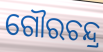
ଗୌରଚନ୍ଦ୍ର